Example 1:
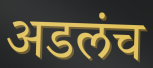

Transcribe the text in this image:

अडलंच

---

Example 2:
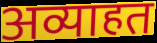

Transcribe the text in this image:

अव्याहत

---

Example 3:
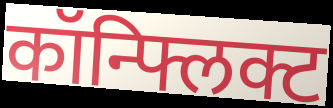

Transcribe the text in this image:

कॉन्फ्लिक्ट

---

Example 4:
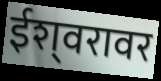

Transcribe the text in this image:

ईश्वरावर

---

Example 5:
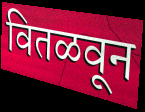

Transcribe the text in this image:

वितळवून